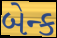
બેન્ક